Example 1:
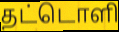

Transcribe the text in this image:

தட்டொளி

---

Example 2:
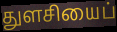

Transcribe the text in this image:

துளசியைப்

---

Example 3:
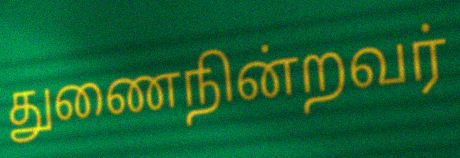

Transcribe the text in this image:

துணைநின்றவர்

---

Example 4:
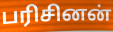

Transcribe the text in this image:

பரிசினன்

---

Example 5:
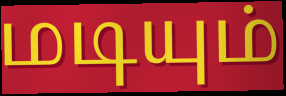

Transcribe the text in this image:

மடியும்